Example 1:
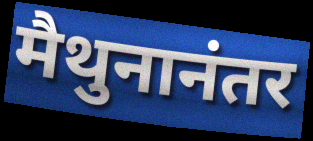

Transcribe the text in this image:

मैथुनानंतर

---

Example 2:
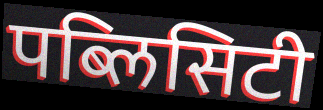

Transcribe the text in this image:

पब्लिसिटी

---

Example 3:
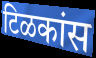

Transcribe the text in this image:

टिळकांस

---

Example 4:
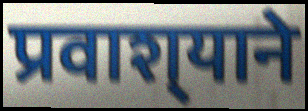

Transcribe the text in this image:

प्रवाश्याने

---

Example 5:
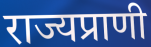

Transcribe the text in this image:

राज्यप्राणी